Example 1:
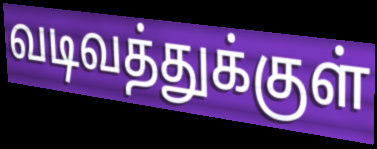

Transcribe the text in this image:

வடிவத்துக்குள்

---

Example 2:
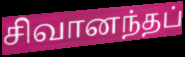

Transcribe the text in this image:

சிவானந்தப்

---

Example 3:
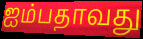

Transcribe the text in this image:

ஐம்பதாவது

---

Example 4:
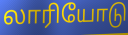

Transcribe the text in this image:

லாரியோடு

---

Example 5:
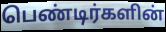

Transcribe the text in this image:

பெண்டிர்களின்